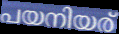
പയനിയര്